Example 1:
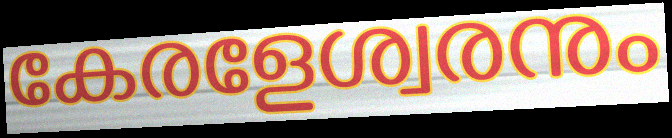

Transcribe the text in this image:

കേരളേശ്വരനും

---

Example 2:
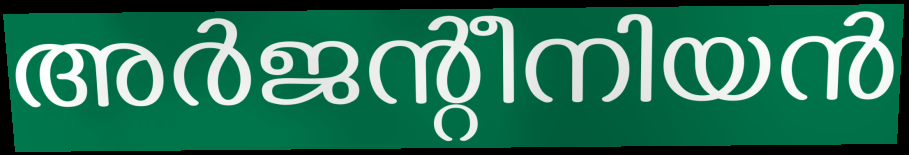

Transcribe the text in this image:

അർജന്റീനിയൻ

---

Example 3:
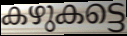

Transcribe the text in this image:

കഴുകട്ടെ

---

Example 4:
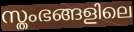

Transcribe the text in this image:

സ്തംഭങ്ങളിലെ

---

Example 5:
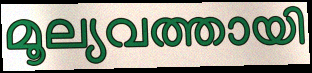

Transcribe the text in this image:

മൂല്യവത്തായി